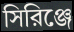
সিরিঞ্জে